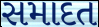
સમાદત